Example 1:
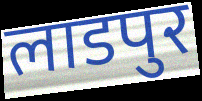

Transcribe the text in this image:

लाडपुर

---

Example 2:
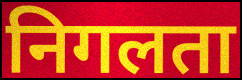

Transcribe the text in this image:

निगलता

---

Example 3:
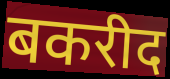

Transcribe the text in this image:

बकरीद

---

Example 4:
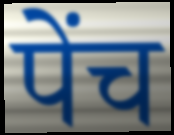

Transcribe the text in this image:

पेंच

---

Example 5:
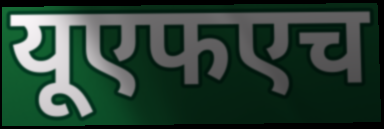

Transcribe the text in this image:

यूएफएच